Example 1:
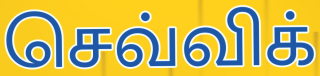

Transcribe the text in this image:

செவ்விக்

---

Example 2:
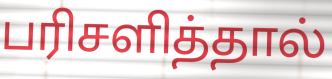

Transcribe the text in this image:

பரிசளித்தால்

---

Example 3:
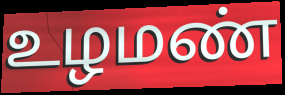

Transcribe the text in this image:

உழமண்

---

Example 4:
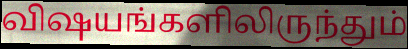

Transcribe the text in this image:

விஷயங்களிலிருந்தும்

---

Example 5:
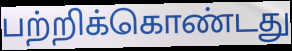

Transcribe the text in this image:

பற்றிக்கொண்டது